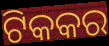
ଟିକକର